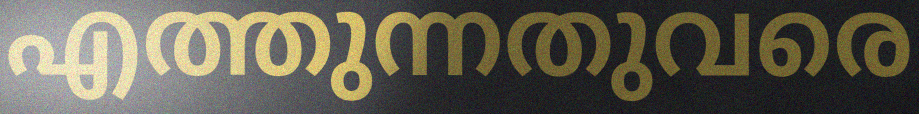
എത്തുന്നതുവരെ